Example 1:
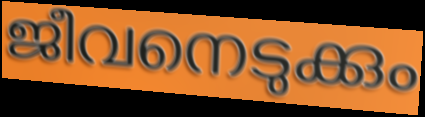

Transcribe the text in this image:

ജീവനെടുക്കും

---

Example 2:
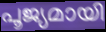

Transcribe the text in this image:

പൂജ്യമായി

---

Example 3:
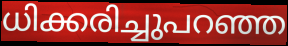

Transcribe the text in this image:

ധിക്കരിച്ചുപറഞ്ഞ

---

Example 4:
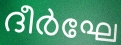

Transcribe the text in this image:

ദീർഘേ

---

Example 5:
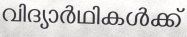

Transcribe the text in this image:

വിദ്യാർഥികൾക്ക്